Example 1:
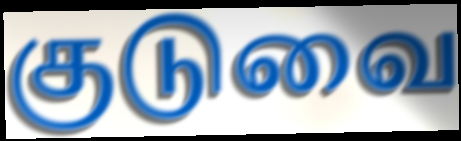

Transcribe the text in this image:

குடுவை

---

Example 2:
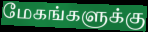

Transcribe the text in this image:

மேகங்களுக்கு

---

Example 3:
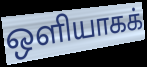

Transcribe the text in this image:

ஒளியாகக்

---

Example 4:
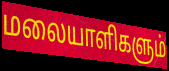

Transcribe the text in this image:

மலையாளிகளும்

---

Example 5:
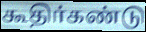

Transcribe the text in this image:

கூதிர்கண்டு